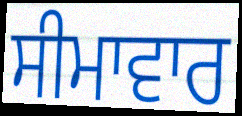
ਸੀਮਾਵਾਰ